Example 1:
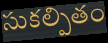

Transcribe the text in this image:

సుకల్పితం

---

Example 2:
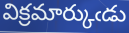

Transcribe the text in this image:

విక్రమార్కుఁడు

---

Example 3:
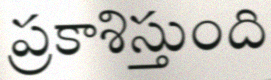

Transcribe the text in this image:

ప్రకాశిస్తుంది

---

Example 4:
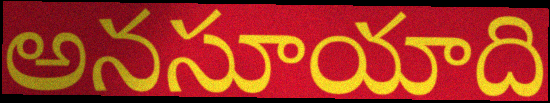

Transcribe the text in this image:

అనసూయాది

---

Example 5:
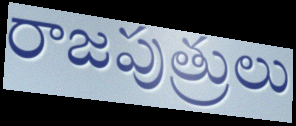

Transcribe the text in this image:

రాజపుత్రులు